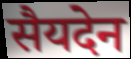
सैयदेन